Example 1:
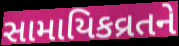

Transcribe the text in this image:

સામાયિકવ્રતને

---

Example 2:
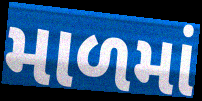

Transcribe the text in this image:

માળમાં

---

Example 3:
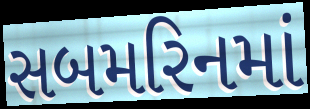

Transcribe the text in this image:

સબમરિનમાં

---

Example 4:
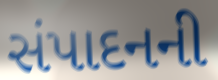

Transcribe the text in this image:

સંપાદનની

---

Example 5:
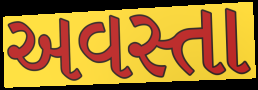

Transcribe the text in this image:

અવસ્તા